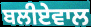
ਬਲੀਏਵਾਲ